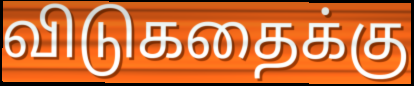
விடுகதைக்கு